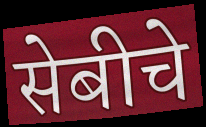
सेबीचे